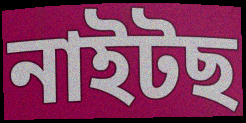
নাইটছ